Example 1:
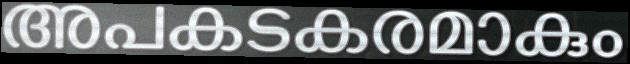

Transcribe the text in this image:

അപകടകരമാകും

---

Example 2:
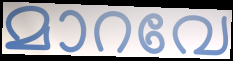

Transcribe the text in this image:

മാറവേ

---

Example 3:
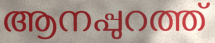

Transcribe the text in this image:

ആനപ്പുറത്ത്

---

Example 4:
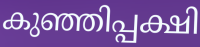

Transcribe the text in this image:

കുഞ്ഞിപ്പക്ഷി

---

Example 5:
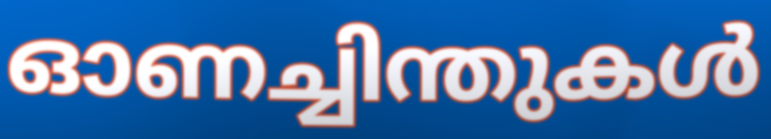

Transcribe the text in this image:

ഓണച്ചിന്തുകൾ